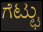
ಗೆಟ್ಟು